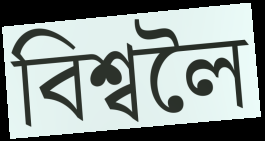
বিশ্বলৈ